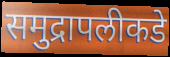
समुद्रापलीकडे